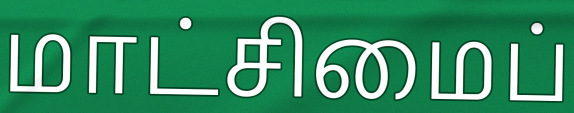
மாட்சிமைப்